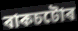
বাকচটোৰ